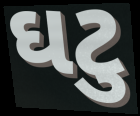
ઘટુ